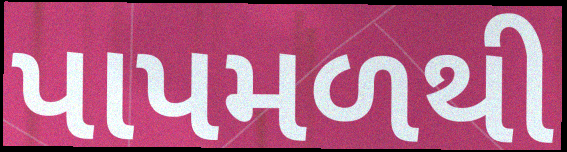
પાપમળથી